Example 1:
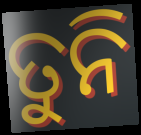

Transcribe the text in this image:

ତୁନି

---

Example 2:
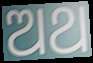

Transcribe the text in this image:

ଅଥ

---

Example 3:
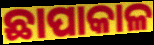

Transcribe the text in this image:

ଛାପାକାଳ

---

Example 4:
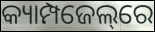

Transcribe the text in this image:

କ୍ୟାମ୍ପଜେଲ୍‌ରେ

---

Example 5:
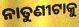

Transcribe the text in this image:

ନାତୁଣୀଟାକୁ